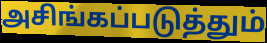
அசிங்கப்படுத்தும்